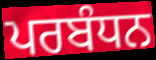
ਪਰਬੰਧਨ